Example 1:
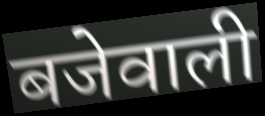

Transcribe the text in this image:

बजेवाली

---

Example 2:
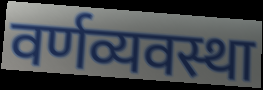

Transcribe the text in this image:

वर्णव्यवस्था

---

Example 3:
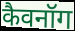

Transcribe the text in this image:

कैवनॉग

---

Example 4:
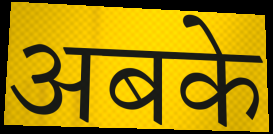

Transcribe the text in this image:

अबके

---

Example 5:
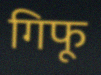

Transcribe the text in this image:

गिफू